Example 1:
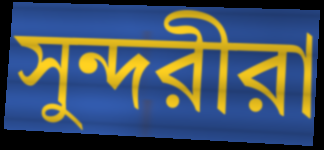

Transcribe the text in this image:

সুন্দরীরা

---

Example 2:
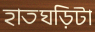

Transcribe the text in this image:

হাতঘড়িটা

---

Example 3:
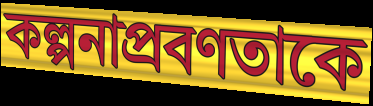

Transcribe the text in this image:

কল্পনাপ্রবণতাকে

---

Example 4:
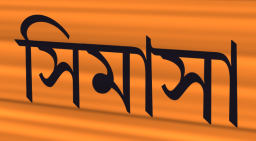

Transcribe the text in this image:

সিমাসা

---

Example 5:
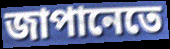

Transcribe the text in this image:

জাপানেতে